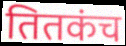
तितकंच